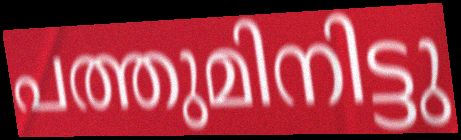
പത്തുമിനിട്ടു